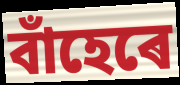
বাঁহেৰে